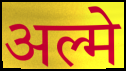
अल्मे